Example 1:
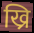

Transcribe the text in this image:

ख्रि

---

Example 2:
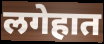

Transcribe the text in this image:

लगेहात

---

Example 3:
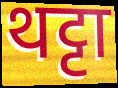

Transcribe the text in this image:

थट्टा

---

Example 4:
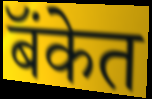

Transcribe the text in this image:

बॅंकेत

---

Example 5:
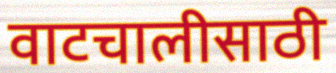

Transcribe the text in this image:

वाटचालीसाठी